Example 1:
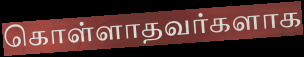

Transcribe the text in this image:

கொள்ளாதவர்களாக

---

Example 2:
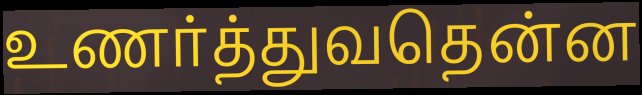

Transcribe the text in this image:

உணர்த்துவதென்ன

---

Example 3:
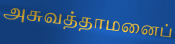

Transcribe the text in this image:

அசுவத்தாமனைப்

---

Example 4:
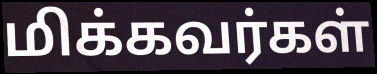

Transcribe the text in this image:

மிக்கவர்கள்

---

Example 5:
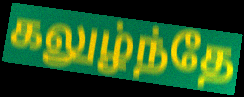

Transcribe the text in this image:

கலுழ்ந்தே